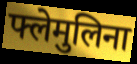
फ्लेमुलिना